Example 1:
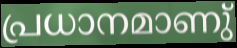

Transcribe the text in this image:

പ്രധാനമാണു്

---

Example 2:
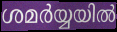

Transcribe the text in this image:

ശമർയ്യയിൽ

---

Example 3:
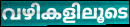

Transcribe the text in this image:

വഴികളിലൂടെ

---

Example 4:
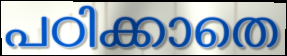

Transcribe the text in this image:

പഠിക്കാതെ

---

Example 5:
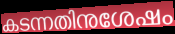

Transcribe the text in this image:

കടന്നതിനുശേഷം